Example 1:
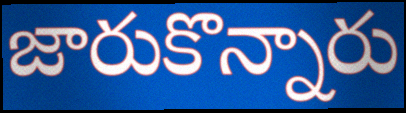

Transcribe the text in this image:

జారుకొన్నారు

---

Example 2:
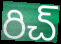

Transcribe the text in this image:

రిచ్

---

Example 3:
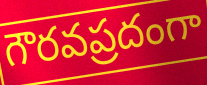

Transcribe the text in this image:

గౌరవప్రదంగా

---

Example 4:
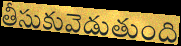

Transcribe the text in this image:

తీసుకువెడుతుంది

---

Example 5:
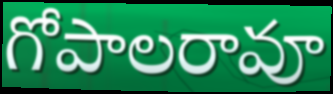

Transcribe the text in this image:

గోపాలరావూ